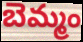
బెమ్మం